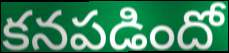
కనపడిందో